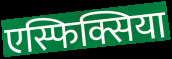
एस्फिक्सिया